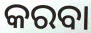
କରବା